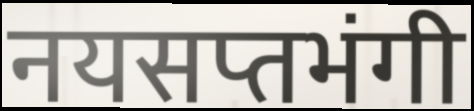
नयसप्तभंगी